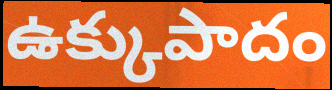
ఉక్కుపాదం